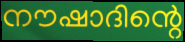
നൗഷാദിന്റെ